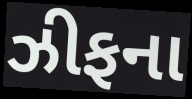
ઝીફના